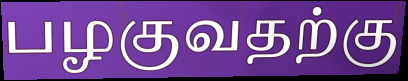
பழகுவதற்கு